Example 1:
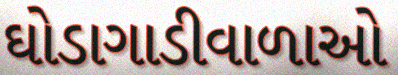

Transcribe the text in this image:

ઘોડાગાડીવાળાઓ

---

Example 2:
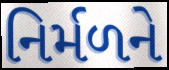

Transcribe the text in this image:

નિર્મળને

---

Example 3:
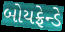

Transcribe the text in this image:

બોયફ્રેન્ડે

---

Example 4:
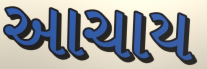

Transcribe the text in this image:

આચાય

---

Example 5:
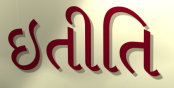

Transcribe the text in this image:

ઇતીતિ